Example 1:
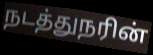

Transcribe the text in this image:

நடத்துநரின்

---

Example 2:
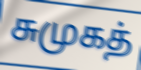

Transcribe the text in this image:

சுமுகத்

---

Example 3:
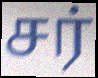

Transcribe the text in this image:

சர்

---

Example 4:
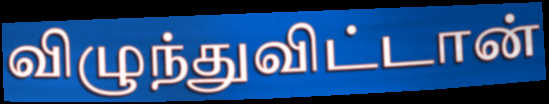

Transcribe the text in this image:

விழுந்துவிட்டான்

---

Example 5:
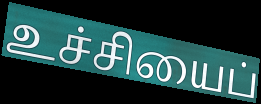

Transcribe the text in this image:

உச்சியைப்